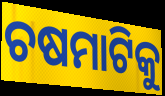
ଚଷମାଟିକୁ